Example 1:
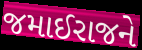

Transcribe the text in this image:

જમાઈરાજને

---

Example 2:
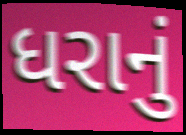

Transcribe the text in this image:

ધરાનું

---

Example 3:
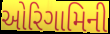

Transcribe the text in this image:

ઓરિગામિની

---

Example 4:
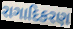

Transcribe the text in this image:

રાગાદિકરણ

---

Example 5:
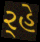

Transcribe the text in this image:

ર્‍હે